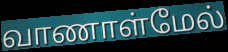
வாணாள்மேல்